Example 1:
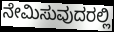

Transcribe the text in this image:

ನೇಮಿಸುವುದರಲ್ಲಿ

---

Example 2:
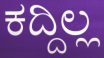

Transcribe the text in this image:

ಕದ್ದಿಲ್ಲ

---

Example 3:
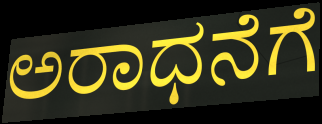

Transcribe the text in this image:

ಅರಾಧನೆಗೆ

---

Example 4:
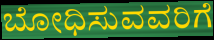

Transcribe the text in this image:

ಬೋಧಿಸುವವರಿಗೆ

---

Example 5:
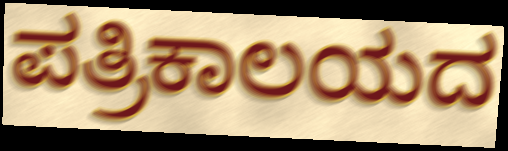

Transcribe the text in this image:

ಪತ್ರಿಕಾಲಯದ